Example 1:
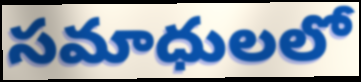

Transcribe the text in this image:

సమాధులలో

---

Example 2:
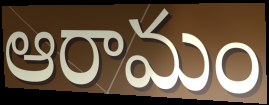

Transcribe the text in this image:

ఆరామం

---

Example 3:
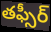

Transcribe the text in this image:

తఫ్సీర్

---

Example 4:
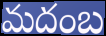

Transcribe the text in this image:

మదంబ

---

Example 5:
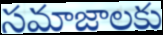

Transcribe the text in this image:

సమాజాలకు